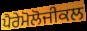
ਪੈਰੇਮੋਲੋਜੀਕਲ